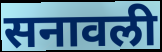
सनावली